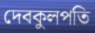
দেবকুলপতি